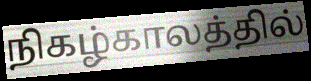
நிகழ்காலத்தில்